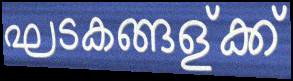
ഘടകങ്ങള്ക്ക്